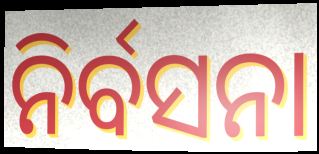
ନିର୍ବସନା